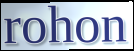
rohon